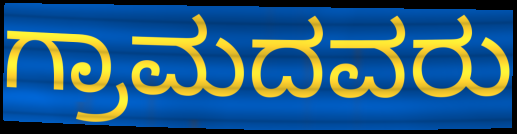
ಗ್ರಾಮದವರು